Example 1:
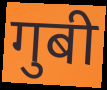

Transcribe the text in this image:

गुबी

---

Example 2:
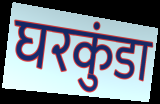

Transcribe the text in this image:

घरकुंडा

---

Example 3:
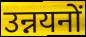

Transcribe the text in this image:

उन्नयनों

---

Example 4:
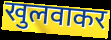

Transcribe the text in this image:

खुलवाकर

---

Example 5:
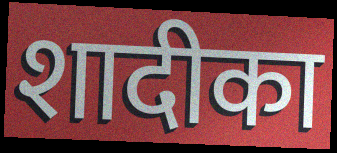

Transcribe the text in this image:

शादीका